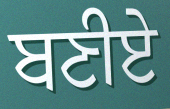
ਬਣੀਏ